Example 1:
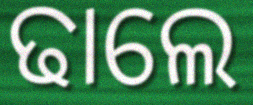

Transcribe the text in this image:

ଢାଲେ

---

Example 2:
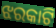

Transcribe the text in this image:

ଝରକାଟି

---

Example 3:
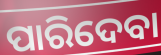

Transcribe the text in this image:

ପାରିଦେବା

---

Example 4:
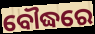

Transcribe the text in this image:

ବୌଦ୍ଧରେ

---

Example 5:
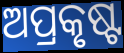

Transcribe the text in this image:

ଅପ୍ରକୃଷ୍ଟ